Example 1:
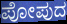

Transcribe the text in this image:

ಪೋಪುದ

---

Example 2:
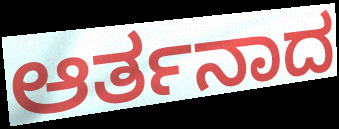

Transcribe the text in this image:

ಆರ್ತನಾದ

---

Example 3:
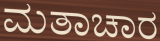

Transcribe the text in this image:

ಮತಾಚಾರ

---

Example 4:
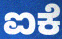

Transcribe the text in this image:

ಐಕೆ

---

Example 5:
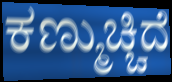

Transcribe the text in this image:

ಕಣ್ಮುಚ್ಚಿದೆ